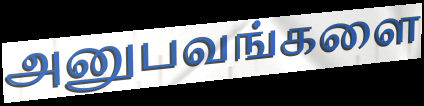
அனுபவங்களை